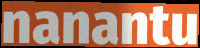
nanantu